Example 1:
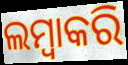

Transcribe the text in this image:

ଲମ୍ବାକରି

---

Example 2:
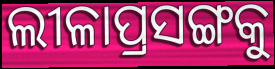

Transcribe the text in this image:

ଲୀଳାପ୍ରସଙ୍ଗକୁ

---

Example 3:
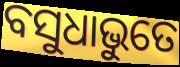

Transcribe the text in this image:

ବସୁଧାଭୁତେ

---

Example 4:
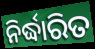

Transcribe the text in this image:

ନିର୍ଦ୍ଧାରିତ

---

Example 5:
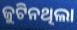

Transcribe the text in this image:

ଜୁଟିନଥିଲା